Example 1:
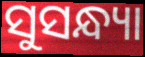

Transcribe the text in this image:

ସୁସନ୍ଧ୍ୟା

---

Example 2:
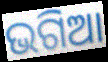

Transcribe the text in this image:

ଭଗିଆ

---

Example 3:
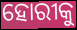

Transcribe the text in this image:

ହୋରୀକୁ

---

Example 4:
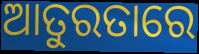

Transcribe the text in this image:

ଆତୁରତାରେ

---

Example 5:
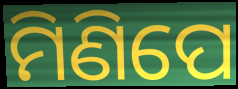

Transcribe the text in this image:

ମିଣିପେ